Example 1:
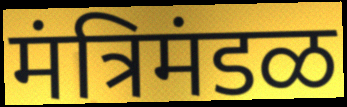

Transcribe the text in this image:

मंत्रिमंडळ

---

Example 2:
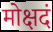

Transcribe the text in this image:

मोक्षदं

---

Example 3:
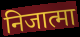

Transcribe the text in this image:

निजात्मा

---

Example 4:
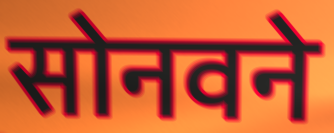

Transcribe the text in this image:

सोनवने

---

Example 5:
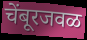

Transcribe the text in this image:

चेंबूरजवळ